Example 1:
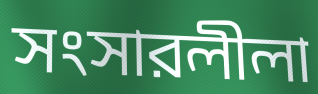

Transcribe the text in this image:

সংসারলীলা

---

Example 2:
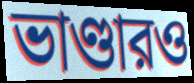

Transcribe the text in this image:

ভাণ্ডারও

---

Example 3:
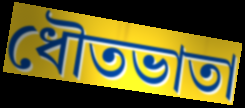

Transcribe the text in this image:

ধৌতভাতা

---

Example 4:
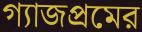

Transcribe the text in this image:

গ্যাজপ্রমের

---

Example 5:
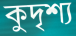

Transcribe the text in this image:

কুদৃশ্য